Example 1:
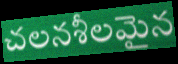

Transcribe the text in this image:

చలనశీలమైన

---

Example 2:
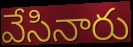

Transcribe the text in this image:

వేసినారు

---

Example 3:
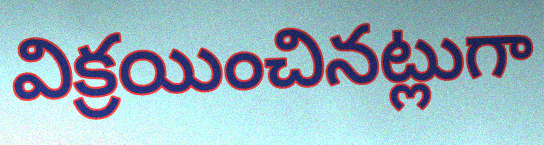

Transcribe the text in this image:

విక్రయించినట్లుగా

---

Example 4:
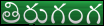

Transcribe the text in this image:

తిరుగంగ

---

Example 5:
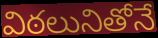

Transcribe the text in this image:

విఠలునితోనే